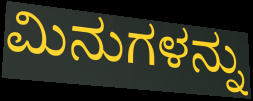
ಮಿನುಗಳನ್ನು